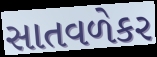
સાતવળેકર